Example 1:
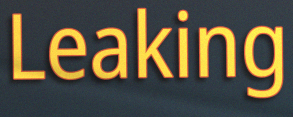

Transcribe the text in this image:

Leaking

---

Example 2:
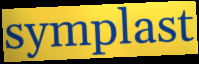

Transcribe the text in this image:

symplast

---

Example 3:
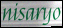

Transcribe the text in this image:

nisaryo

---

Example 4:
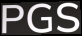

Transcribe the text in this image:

PGS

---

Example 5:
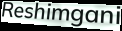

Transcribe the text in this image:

Reshimgani